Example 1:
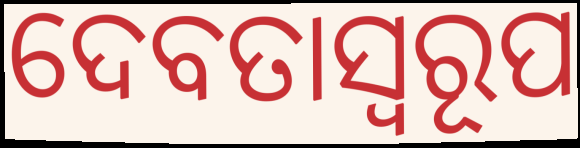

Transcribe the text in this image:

ଦେବତାସ୍ୱରୂପ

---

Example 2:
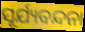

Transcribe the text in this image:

ସୂର୍ଯ୍ୟବନ୍ଦନା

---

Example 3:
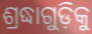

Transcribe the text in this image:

ଶ୍ରଦ୍ଧାଗୁଡ଼ିକୁ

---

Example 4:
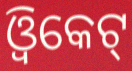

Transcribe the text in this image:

ଓ୍ଵିକେଟ୍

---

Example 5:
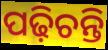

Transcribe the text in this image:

ପଢ଼ିଚନ୍ତି